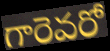
గారెవరో